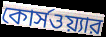
কোর্সওয়্যার